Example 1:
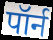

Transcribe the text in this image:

पॉर्न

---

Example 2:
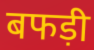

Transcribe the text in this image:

बफड़ी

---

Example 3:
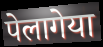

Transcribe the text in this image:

पेलागेया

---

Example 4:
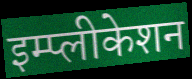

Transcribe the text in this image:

इम्प्लीकेशन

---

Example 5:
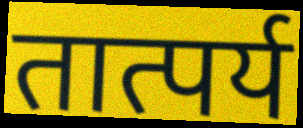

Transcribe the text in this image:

तात्पर्य